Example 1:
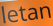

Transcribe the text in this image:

letan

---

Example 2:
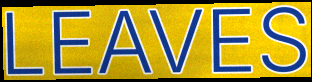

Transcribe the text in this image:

LEAVES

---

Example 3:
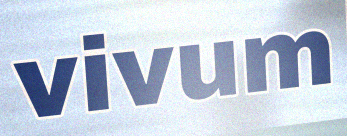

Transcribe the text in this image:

vivum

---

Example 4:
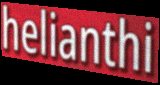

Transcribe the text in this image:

helianthi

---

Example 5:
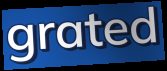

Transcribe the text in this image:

grated